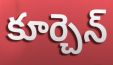
కూర్చెన్